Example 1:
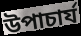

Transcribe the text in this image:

উপাচার্য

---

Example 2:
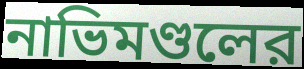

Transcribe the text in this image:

নাভিমণ্ডলের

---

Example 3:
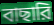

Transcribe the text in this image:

বাছারি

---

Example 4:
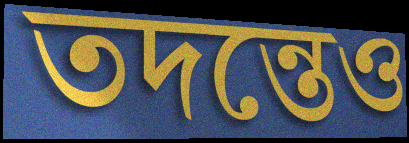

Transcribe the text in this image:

তদন্তেও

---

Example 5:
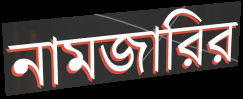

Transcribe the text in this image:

নামজারির